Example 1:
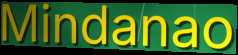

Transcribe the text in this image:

Mindanao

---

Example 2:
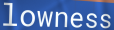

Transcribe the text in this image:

lowness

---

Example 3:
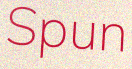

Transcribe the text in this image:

Spun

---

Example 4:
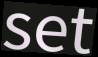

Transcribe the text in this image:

set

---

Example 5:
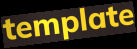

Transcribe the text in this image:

template